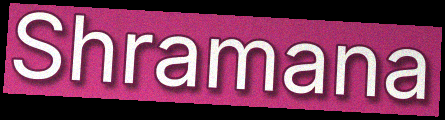
Shramana